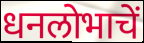
धनलोभाचें